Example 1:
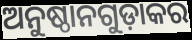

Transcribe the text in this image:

ଅନୁଷ୍ଠାନଗୁଡ଼ାକର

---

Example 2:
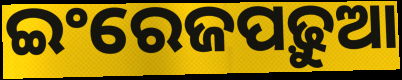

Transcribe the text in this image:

ଇଂରେଜପଢ଼ୁଆ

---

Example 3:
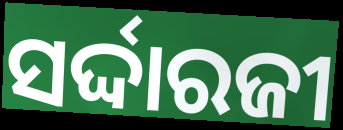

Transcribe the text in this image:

ସର୍ଦ୍ଦାରଜୀ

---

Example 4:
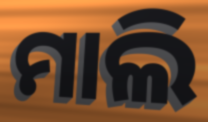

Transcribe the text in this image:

ମାଲି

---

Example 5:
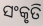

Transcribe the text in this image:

ସଂକୃତି